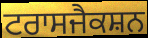
ਟਰਾਸਜੈਕਸ਼ਨ